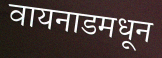
वायनाडमधून